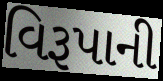
વિરૂપાની